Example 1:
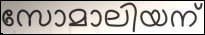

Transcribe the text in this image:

സോമാലിയന്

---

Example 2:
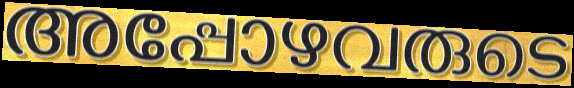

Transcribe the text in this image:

അപ്പോഴവരുടെ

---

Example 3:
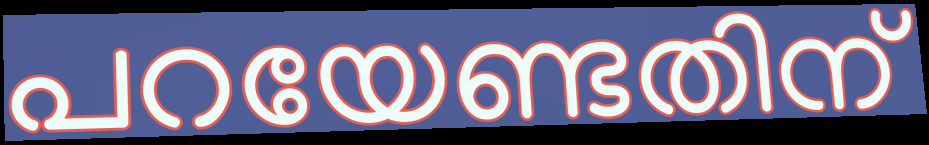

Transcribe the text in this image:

പറയേണ്ടതിന്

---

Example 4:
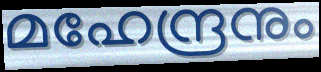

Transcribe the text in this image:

മഹേന്ദ്രനും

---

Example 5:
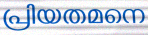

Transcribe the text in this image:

പ്രിയതമനെ